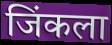
जिंकला